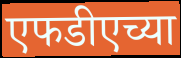
एफडीएच्या